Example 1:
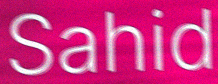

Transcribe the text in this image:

Sahid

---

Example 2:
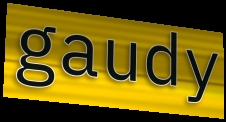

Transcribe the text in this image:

gaudy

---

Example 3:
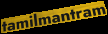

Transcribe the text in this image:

tamilmantram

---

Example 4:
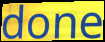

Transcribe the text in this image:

done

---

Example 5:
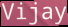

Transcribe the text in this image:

Vijay